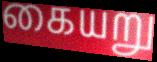
கையறு